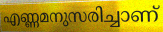
എണ്ണമനുസരിച്ചാണ്